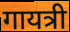
गायत्री